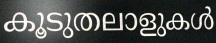
കൂടുതലാളുകൾ